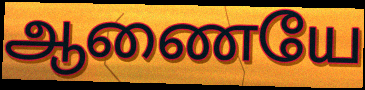
ஆணையே